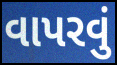
વાપરવું